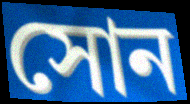
সোন